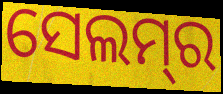
ସେଲମ୍‌ର